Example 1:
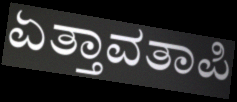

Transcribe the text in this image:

ಏತ್ತಾವತಾಪಿ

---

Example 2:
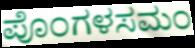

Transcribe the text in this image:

ಪೊಂಗಳಸಮಂ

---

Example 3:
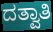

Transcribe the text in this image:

ದತ್ವಾತಿ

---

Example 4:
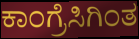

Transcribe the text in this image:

ಕಾಂಗ್ರೆಸಿಗಿಂತ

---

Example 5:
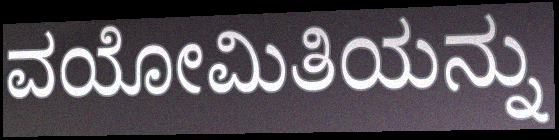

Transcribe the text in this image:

ವಯೋಮಿತಿಯನ್ನು